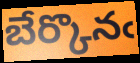
బేర్కొనఁ